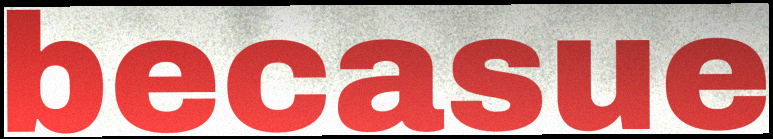
becasue